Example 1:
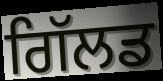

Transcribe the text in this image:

ਗਿੱਲਡ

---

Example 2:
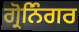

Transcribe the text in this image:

ਗ੍ਰੋਨਿੰਗਰ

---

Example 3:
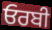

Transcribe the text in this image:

ਓਰਬੀ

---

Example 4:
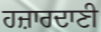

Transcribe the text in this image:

ਹਜ਼ਾਰਦਾਣੀ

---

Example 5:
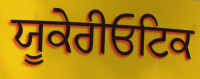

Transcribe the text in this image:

ਯੂਕੇਰੀਓਟਿਕ